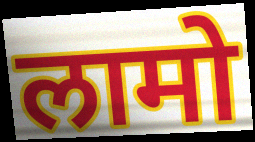
लामो